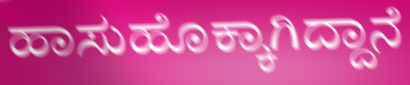
ಹಾಸುಹೊಕ್ಕಾಗಿದ್ದಾನೆ